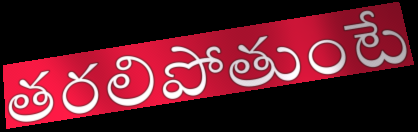
తరలిపోతుంటే